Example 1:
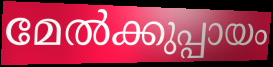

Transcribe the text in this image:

മേൽക്കുപ്പായം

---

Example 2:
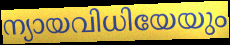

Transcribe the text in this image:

ന്യായവിധിയേയും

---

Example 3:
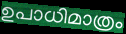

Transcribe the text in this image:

ഉപാധിമാത്രം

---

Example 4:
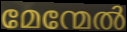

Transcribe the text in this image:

മേന്മേൽ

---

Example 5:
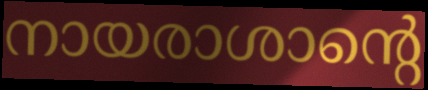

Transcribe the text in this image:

നായരാശാന്റെ